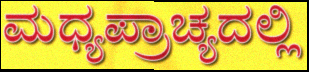
ಮಧ್ಯಪ್ರಾಚ್ಯದಲ್ಲಿ